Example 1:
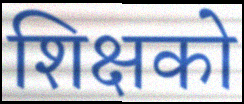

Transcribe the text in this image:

शिक्षको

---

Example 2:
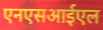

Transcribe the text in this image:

एनएसआईएल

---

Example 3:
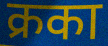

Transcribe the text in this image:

क्रका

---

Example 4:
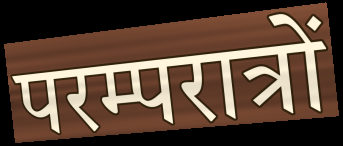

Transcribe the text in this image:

परम्परात्रों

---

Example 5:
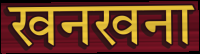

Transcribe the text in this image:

खनखना